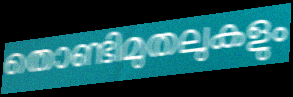
തൊണ്ടിമുതലുകളും